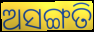
ଅସଙ୍ଗତି